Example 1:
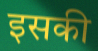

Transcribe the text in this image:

इसकी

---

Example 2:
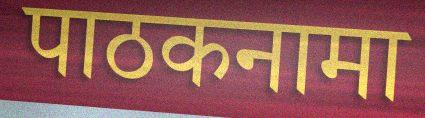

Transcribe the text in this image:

पाठकनामा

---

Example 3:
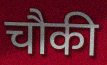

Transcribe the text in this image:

चौकी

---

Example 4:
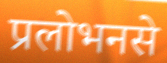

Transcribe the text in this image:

प्रलोभनसे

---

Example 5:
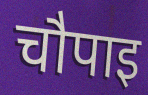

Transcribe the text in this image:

चौपाइ